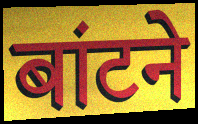
बांटने